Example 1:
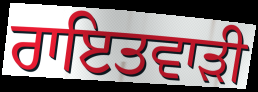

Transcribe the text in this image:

ਰਾਇਤਵਾੜੀ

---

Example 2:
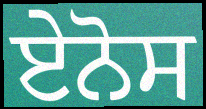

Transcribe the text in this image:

ਏਨੋਸ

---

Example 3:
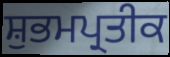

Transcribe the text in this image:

ਸ਼ੁਭਮਪ੍ਰਤੀਕ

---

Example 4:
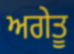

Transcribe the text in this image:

ਅਗੇਤੂ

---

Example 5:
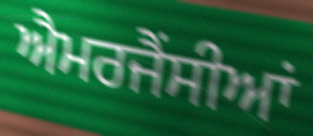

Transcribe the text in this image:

ਐਮਰਜੈਂਸੀਆਂ